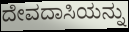
ದೇವದಾಸಿಯನ್ನು